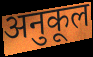
अनुकूल